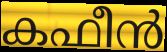
കഫീൻ